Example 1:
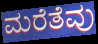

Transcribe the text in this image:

ಮರೆತೆವು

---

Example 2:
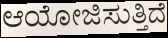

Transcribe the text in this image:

ಆಯೋಜಿಸುತ್ತಿದೆ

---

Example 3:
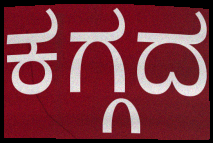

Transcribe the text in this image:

ಕಗ್ಗದ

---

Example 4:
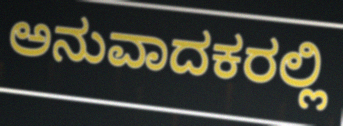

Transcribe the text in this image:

ಅನುವಾದಕರಲ್ಲಿ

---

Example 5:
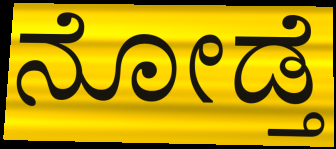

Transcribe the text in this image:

ನೋಡ್ತೆ